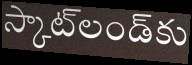
స్కాట్‌లండ్‌కు